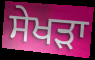
ਸੇਖੜਾ